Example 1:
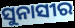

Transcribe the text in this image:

ସୁନାସୀର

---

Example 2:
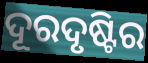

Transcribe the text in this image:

ଦୂରଦୃଷ୍ଟିର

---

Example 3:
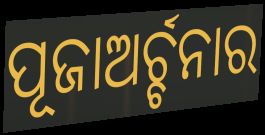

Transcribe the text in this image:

ପୂଜାଅର୍ଚ୍ଚନାର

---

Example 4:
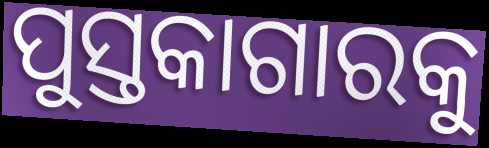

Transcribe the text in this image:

ପୁସ୍ତକାଗାରକୁ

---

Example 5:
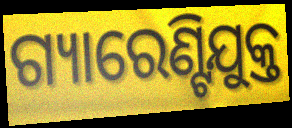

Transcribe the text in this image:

ଗ୍ୟାରେଣ୍ଟିଯୁକ୍ତ